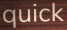
quick